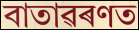
বাতাৱৰণত